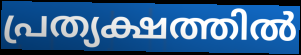
പ്രത്യക്ഷത്തിൽ